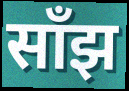
साँझ